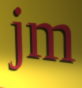
jm